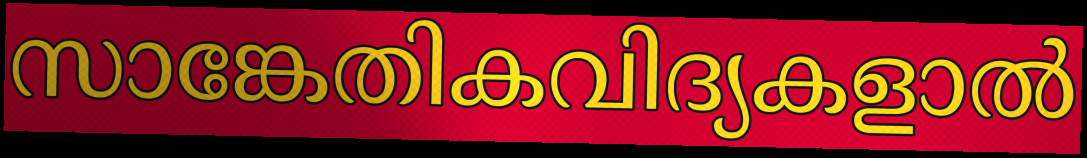
സാങ്കേതികവിദ്യകളാൽ